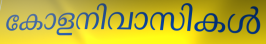
കോളനിവാസികൾ